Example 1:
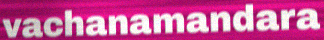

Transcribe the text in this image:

vachanamandara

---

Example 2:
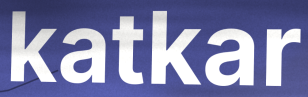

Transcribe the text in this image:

katkar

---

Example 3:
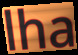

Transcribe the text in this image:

lha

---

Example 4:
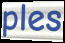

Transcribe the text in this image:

ples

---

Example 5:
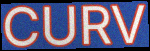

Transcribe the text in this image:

CURV